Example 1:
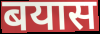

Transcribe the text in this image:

बयास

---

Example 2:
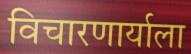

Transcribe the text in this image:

विचारणार्याला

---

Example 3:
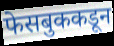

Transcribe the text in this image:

फेसबुककडून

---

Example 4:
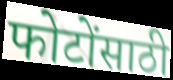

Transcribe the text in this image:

फोटोंसाठी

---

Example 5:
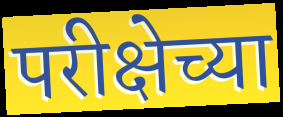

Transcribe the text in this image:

परीक्षेच्या